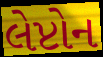
લેપ્ટોન